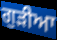
ਗੁਡ਼ੀਆ